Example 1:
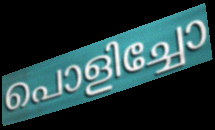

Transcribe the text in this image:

പൊളിച്ചോ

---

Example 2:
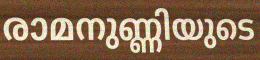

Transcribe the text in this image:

രാമനുണ്ണിയുടെ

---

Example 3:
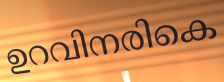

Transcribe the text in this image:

ഉറവിനരികെ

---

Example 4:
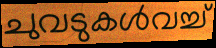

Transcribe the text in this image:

ചുവടുകൾവച്ച്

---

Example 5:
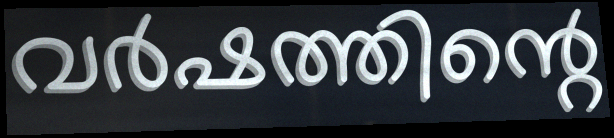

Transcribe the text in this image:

വർഷത്തിന്റെ